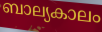
ബാല്യകാലം